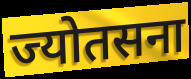
ज्योतसना